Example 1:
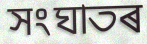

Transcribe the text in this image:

সংঘাতৰ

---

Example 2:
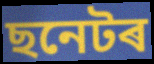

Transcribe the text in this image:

ছনেটৰ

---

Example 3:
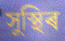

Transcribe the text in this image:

সুস্থিৰ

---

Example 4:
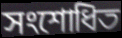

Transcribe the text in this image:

সংশোধিত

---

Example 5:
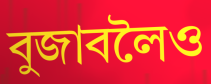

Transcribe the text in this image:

বুজাবলৈও